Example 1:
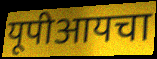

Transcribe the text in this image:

यूपीआयचा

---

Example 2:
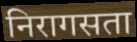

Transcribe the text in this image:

निरागसता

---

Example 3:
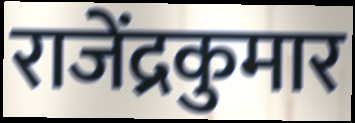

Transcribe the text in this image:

राजेंद्रकुमार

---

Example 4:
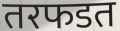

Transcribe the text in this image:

तरफडत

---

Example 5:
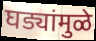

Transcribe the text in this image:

घड्यांमुळे